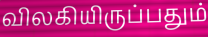
விலகியிருப்பதும்